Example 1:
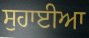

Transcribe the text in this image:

ਸੁਹਾਈਆ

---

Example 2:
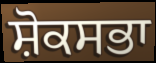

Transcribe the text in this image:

ਸ਼ੋਕਸਭਾ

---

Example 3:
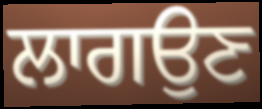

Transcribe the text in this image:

ਲਾਗਉਣ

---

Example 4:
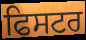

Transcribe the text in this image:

ਫਿਸਟਰ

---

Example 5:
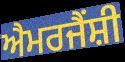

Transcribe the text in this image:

ਐਮਰਜੈਂਸ਼ੀ